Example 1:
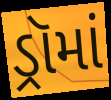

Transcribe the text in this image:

ડ્રૉમાં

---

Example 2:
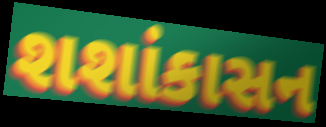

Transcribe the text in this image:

શશાંકાસન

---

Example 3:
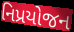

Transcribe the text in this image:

નિપ્રયોજન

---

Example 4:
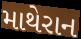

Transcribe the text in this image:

માથેરાન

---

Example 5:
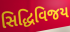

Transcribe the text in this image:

સિદ્ધિવિજય